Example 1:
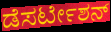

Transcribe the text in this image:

ಡೆಸರ್ಟೇಶನ್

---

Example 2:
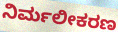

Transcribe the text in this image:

ನಿರ್ಮಲೀಕರಣ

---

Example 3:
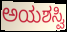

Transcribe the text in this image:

ಅಯಶಸ್ವಿ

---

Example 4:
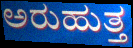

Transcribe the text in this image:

ಅರುಹುತ್ತ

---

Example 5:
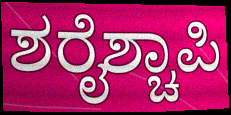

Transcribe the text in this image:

ಶರೈಶ್ಚಾಪಿ